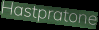
Hastpratone